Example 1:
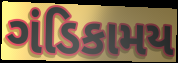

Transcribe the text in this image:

ગંડિકામય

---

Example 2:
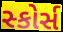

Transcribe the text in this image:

સ્કોર્સ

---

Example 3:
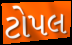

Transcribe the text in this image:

ટોપલ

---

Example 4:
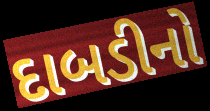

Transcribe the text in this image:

દાબડીનો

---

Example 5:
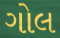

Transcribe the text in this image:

ગોલ